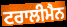
ਟਰਾਲੀਮੈਨ